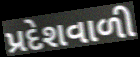
પ્રદેશવાળી